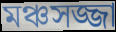
মঞ্চসজ্জা